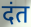
दंत